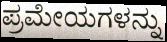
ಪ್ರಮೇಯಗಳನ್ನು